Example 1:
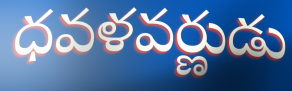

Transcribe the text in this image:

ధవళవర్ణుడు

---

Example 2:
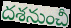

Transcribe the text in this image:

దశనుంచీ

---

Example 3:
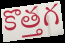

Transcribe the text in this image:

కొత్తగ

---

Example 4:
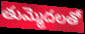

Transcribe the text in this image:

తుమ్మెదలతో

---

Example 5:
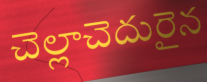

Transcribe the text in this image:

చెల్లాచెదురైన